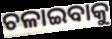
ଚଳାଇବାକୁ